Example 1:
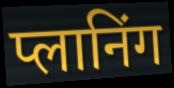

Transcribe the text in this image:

प्‍लानिंग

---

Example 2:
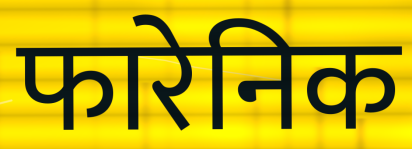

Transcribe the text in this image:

फारेनिक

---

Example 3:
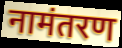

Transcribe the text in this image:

नामंतरण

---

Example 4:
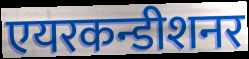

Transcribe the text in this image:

एयरकन्डीशनर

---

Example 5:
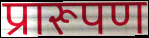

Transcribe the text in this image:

प्रारूपण